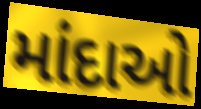
માંદાઓ